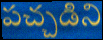
పచ్చడిని